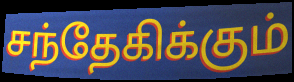
சந்தேகிக்கும்